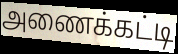
அணைக்கட்டி